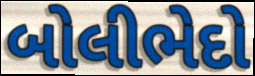
બોલીભેદો